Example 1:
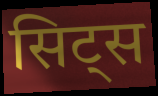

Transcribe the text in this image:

सिट्स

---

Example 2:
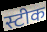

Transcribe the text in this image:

स्टीक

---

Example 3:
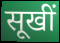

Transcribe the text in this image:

सूखीं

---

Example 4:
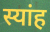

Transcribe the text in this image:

स्यांह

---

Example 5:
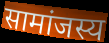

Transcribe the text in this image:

सामांजस्य